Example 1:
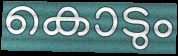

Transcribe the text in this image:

കൊടും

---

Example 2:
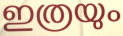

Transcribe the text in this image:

ഇത്രയും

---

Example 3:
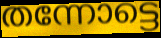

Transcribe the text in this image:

തന്നോട്ടെ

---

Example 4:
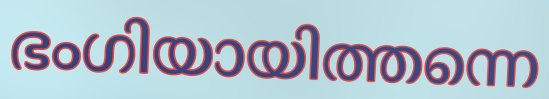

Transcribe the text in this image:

ഭംഗിയായിത്തന്നെ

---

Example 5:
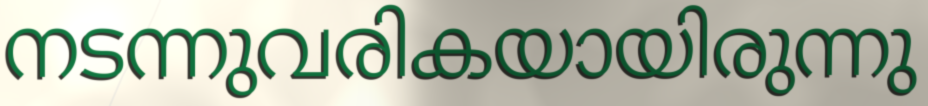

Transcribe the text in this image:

നടന്നുവരികയായിരുന്നു